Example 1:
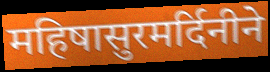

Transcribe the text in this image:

महिषासुरमर्दिनीने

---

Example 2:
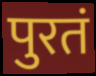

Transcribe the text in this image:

पुरतं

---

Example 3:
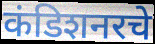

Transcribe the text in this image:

कंडिशनरचे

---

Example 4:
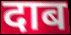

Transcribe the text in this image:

दाब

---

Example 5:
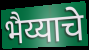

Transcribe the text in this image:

भैय्याचे